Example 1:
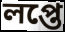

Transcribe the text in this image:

লপ্তে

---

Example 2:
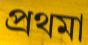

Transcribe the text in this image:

প্রথমা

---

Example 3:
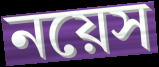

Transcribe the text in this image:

নয়েস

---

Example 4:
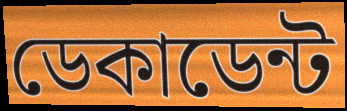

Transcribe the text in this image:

ডেকাডেন্ট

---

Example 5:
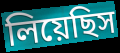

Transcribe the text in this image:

লিয়েছিস